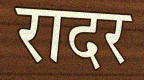
रादर